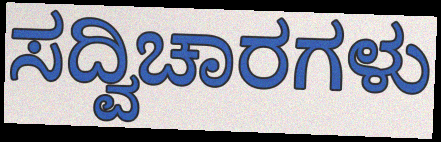
ಸದ್ವಿಚಾರಗಳು